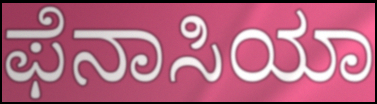
ಫೆನಾಸಿಯಾ